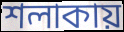
শলাকায়